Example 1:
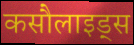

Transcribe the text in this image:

कसौलाइड्स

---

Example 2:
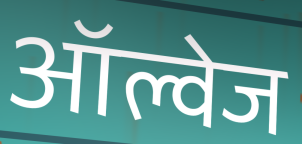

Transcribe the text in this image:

ऑल्वेज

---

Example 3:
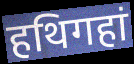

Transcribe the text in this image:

हथिगहां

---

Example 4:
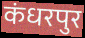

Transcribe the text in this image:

कंधरपुर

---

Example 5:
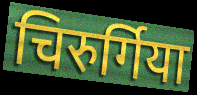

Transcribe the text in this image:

चिरुर्गिया